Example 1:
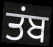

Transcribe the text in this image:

ਤਂਬ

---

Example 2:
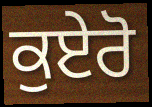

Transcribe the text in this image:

ਕੁਏਰੋ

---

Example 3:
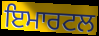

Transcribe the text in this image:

ਇਮਾਰਟਲ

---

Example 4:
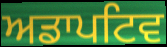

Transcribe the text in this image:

ਅਡਾਪਟਿਵ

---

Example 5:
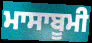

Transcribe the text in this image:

ਮਾਸਾਬੂਮੀ